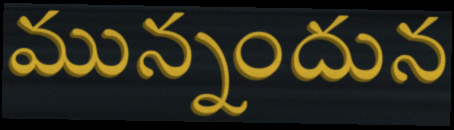
మున్నందున